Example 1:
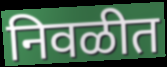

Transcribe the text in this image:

निवळीत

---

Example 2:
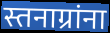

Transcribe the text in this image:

स्तनाग्रांना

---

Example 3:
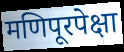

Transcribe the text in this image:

मणिपूरपेक्षा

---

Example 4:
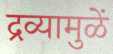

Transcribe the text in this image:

द्रव्यामुळें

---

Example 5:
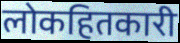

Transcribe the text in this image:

लोकहितकारी